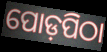
ପୋଡ଼ପିଠା